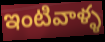
ఇంటివాళ్ళ